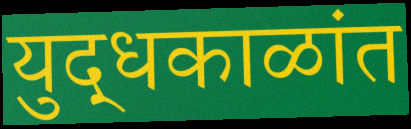
युद्धकाळांत